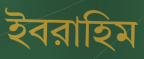
ইবরাহিম